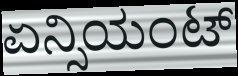
ಏನ್ಸಿಯಂಟ್